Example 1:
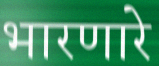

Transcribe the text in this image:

भारणारे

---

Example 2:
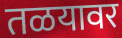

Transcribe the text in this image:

तळयावर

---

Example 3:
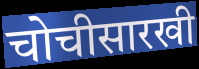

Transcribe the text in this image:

चोचीसारखी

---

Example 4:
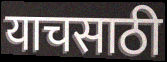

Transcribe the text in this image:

याचसाठी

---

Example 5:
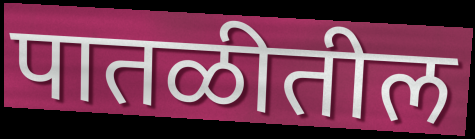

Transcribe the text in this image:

पातळीतील